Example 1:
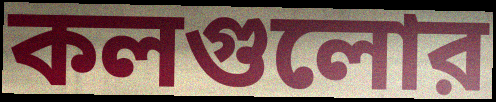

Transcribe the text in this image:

কলগুলোর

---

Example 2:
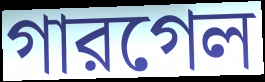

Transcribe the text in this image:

গারগেল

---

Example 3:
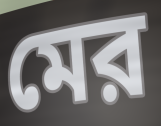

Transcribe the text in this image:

মের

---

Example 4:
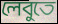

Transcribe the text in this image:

লেবুতে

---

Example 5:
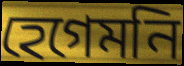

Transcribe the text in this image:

হেগেমনি